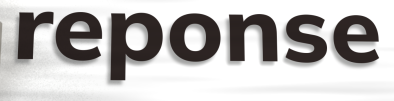
reponse